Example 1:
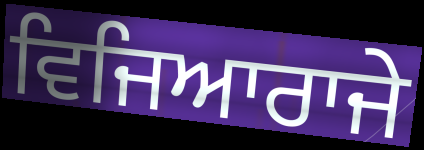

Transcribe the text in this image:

ਵਿਜਿਆਰਾਜੇ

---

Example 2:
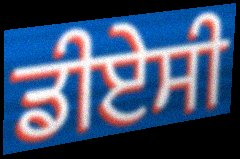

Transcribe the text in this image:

ਡੀਏਸੀ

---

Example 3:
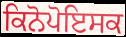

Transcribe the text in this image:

ਕਿਨੋਪੋਇਸਕ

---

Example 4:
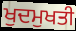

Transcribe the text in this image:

ਖੁਦਮੁਖਤੀ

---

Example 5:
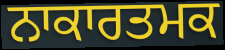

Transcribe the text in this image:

ਨਾਕਾਰਤਮਕ